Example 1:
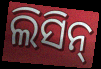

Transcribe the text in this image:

ଲିସିନ୍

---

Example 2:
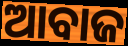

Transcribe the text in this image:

ଆବାଜ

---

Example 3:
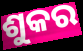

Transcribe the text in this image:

ଶୁକର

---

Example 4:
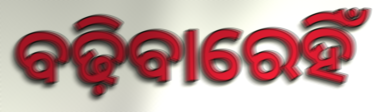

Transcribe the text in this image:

ବଢ଼ିବାରେହିଁ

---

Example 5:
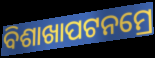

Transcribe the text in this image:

ବିଶାଖାପଟନମ୍ରେ